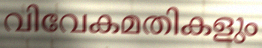
വിവേകമതികളും